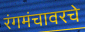
रंगमंचावरचे